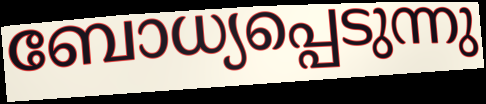
ബോധ്യപ്പെടുന്നു